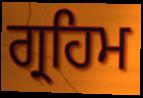
ਗ੍ਰਹਿਮ